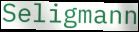
Seligmann